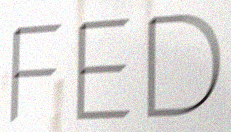
FED